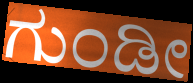
ಗುಂಡೀ